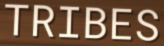
TRIBES